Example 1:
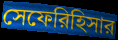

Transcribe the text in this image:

সেফেরিহিসার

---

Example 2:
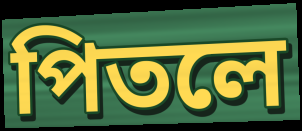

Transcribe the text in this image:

পিতলে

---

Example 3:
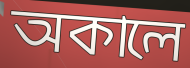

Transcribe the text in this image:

অকালে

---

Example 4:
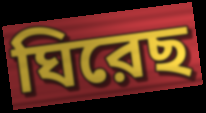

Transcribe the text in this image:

ঘিরেছ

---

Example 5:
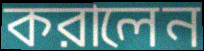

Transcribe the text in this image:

করালেন